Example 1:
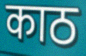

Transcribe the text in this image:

काठ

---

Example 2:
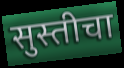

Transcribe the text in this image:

सुस्तीचा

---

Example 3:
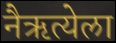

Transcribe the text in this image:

नैऋत्येला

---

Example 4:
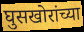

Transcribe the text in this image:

घुसखोरांच्या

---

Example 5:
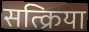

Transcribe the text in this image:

सत्क्रिया